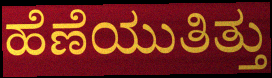
ಹೆಣೆಯುತಿತ್ತು